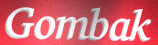
Gombak